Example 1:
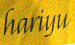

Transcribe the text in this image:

hariyu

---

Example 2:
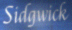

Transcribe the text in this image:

Sidgwick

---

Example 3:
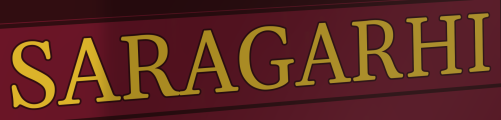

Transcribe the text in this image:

SARAGARHI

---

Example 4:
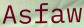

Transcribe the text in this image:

Asfaw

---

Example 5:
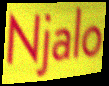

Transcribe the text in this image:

Njalo